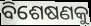
ବିଶେଷଣକୁ